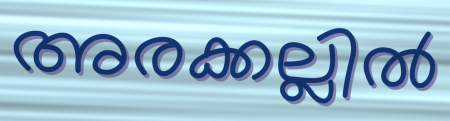
അരക്കല്ലിൽ